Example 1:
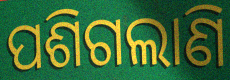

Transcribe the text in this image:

ପଶିଗଲାଣି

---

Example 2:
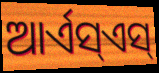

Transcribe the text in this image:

ଆର୍ଏସ୍ଏସ୍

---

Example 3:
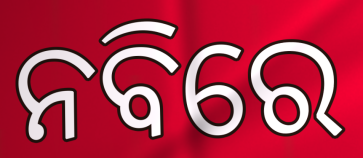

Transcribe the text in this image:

ନବିରେ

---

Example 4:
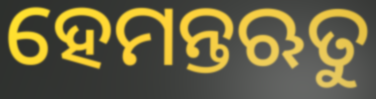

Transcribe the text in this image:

ହେମନ୍ତଋତୁ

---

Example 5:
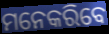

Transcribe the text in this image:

ମନେକରିବେ